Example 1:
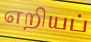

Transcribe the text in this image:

எறியப்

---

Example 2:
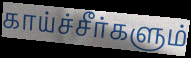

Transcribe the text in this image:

காய்ச்சீர்களும்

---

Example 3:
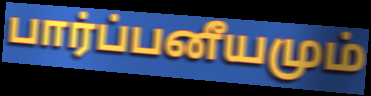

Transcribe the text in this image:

பார்ப்பனீயமும்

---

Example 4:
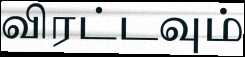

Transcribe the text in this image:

விரட்டவும்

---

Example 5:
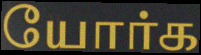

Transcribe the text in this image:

யோர்க